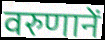
वरुणानें